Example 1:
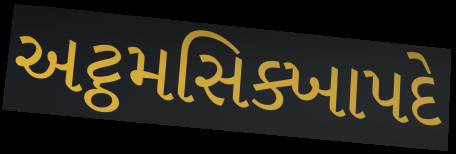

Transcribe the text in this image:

અટ્ઠમસિક્ખાપદે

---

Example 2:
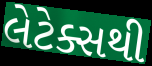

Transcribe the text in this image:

લેટેક્સથી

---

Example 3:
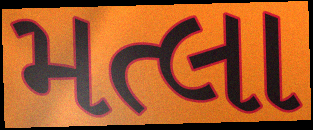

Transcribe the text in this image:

મત્લા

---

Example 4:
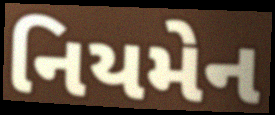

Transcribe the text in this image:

નિયમેન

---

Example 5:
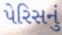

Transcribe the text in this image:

પેરિસનું